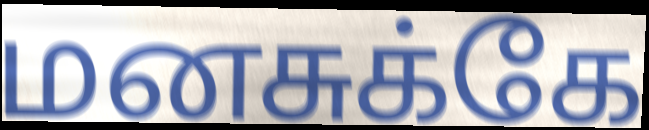
மனசுக்கே